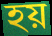
হয়